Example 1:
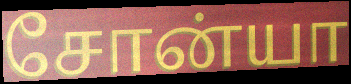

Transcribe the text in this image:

சோன்யா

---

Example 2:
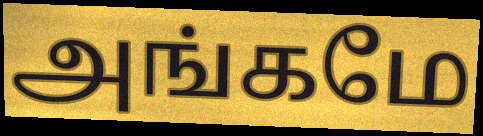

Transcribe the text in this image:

அங்கமே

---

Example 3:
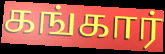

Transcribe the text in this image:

கங்கார்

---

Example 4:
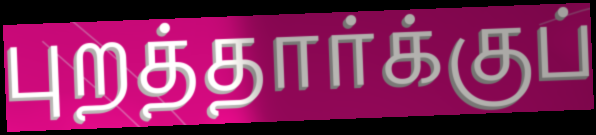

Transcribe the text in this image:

புறத்தார்க்குப்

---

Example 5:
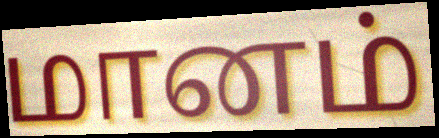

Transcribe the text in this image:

மானம்